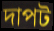
দাপট